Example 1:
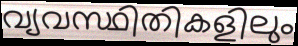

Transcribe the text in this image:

വ്യവസ്ഥിതികളിലും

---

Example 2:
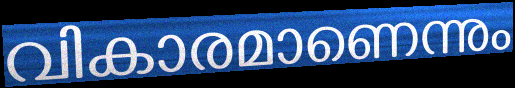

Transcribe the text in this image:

വികാരമാണെന്നും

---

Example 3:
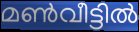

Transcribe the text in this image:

മൺവീട്ടിൽ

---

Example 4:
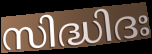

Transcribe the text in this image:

സിദ്ധിദഃ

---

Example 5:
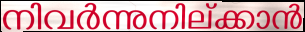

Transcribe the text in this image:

നിവർന്നുനില്ക്കാൻ